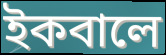
ইকবালে